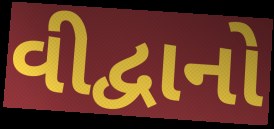
વીદ્વાનો